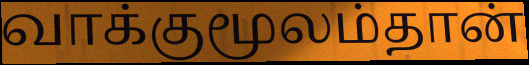
வாக்குமூலம்தான்